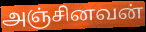
அஞ்சினவன்